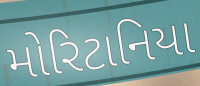
મોરિટાનિયા